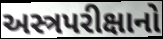
અસ્ત્રપરીક્ષાનો